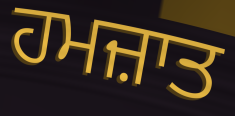
ਹਮਜ਼ਾਤ